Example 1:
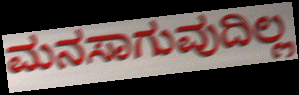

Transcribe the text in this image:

ಮನಸಾಗುವುದಿಲ್ಲ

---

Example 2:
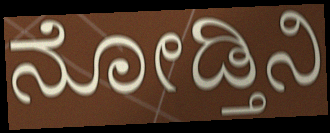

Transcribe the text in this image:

ನೋಡ್ತಿನಿ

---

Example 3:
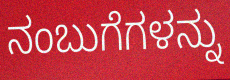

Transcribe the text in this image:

ನಂಬುಗೆಗಳನ್ನು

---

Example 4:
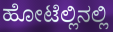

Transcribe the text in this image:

ಹೋಟೆಲ್ಲಿನಲ್ಲಿ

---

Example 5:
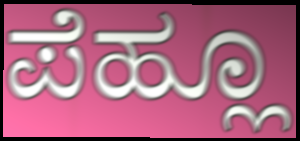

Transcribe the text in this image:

ಪೆಹ್ಲೂ